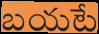
బయటే